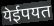
येईपयत